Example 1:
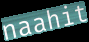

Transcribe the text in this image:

naahit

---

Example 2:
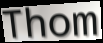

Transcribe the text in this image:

Thom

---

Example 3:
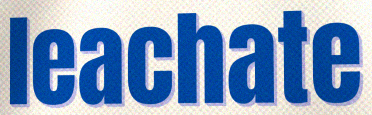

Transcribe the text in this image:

leachate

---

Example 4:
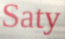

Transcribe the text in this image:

Saty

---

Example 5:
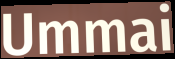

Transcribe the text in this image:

Ummai